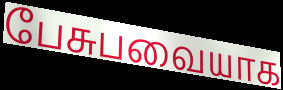
பேசுபவையாக